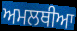
ਅਮਲਥੀਆ